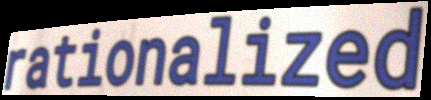
rationalized